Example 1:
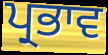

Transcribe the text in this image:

ਪ੍ਰਭਾਵ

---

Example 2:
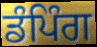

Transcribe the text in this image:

ਡੰਪਿੰਗ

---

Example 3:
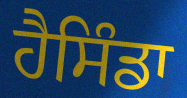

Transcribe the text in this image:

ਹੈਸਿੰਡਾ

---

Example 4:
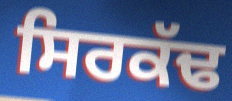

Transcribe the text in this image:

ਸਿਰਕੱਢ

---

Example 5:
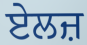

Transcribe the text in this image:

ਏਲਜ਼